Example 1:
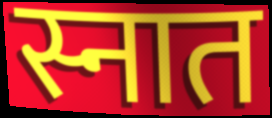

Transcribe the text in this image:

स्नात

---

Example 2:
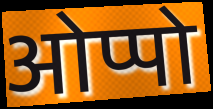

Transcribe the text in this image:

ओप्पो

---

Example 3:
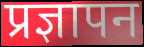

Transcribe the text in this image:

प्रज्ञापन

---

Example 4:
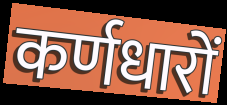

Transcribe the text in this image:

कर्णधारों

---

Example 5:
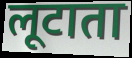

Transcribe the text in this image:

लूटाता